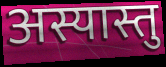
अस्यास्तु